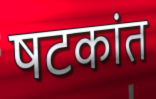
षटकांत